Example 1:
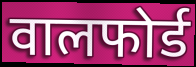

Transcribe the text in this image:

वालफोर्ड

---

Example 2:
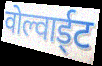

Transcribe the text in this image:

वोल्वार्ड्ट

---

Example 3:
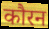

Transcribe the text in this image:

कौरन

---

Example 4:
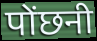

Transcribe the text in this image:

पोंछनी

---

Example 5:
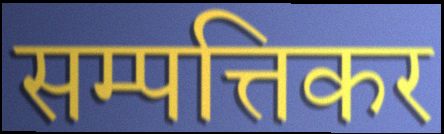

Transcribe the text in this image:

सम्पत्तिकर